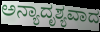
ಅನ್ಯಾದೃಶ್ಯವಾದ